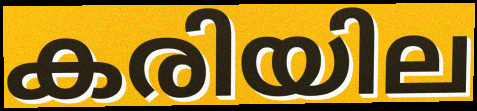
കരിയില